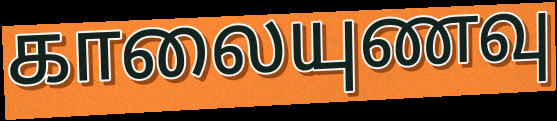
காலையுணவு